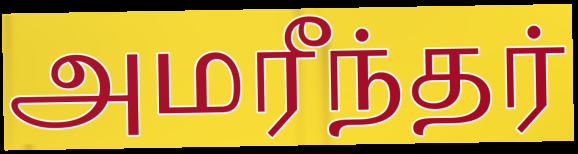
அமரீந்தர்